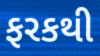
ફરકથી